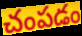
చంపడం